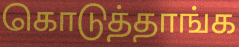
கொடுத்தாங்க